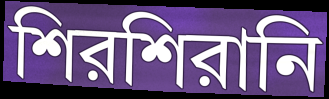
শিরশিরানি